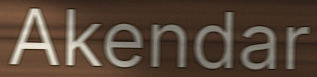
Akendar